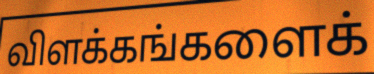
விளக்கங்களைக்